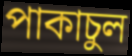
পাকাচুল